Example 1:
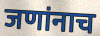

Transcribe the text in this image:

जणांनाच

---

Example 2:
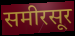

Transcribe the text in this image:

समीरसूर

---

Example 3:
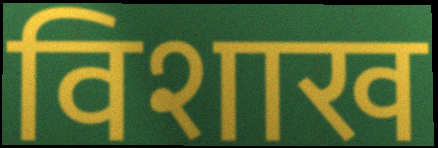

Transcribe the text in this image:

विशाख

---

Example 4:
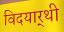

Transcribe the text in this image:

विदयार्थी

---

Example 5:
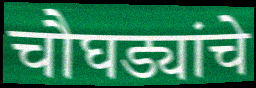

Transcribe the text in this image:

चौघड्यांचे